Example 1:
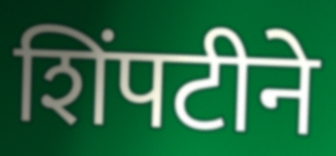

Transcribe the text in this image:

शिंपटीने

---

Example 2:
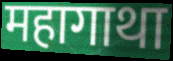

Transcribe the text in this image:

महागाथा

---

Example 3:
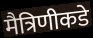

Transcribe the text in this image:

मैत्रिणीकडे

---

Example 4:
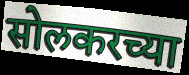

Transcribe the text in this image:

सोलकरच्या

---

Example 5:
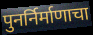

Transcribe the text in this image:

पुनर्निर्माणाचा